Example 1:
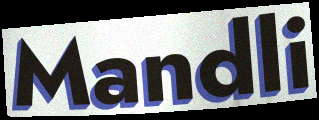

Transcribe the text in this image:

Mandli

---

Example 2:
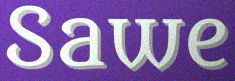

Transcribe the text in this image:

Sawe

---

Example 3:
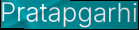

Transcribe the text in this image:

Pratapgarhi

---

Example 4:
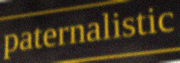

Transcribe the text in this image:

paternalistic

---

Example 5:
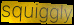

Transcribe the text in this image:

squiggly